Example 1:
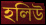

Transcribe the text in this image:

হলিউ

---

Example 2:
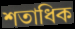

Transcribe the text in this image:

শতাধিক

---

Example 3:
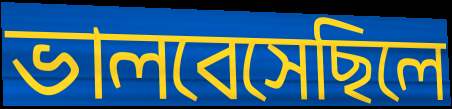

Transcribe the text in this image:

ভালবেসেছিলে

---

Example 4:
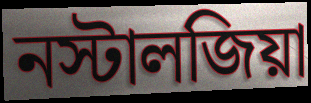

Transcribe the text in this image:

নস্টালজিয়া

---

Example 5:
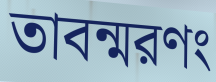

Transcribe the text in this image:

তাবন্মরণং